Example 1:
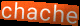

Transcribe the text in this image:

chache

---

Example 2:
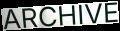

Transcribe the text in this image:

ARCHIVE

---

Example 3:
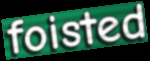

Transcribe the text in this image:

foisted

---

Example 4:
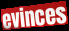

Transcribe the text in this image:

evinces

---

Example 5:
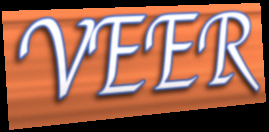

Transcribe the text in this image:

VEER